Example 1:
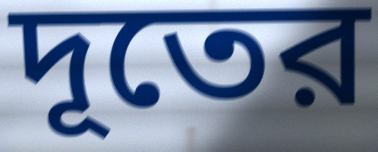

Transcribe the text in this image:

দূতের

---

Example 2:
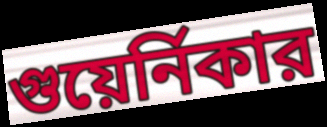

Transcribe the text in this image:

গুয়ের্নিকার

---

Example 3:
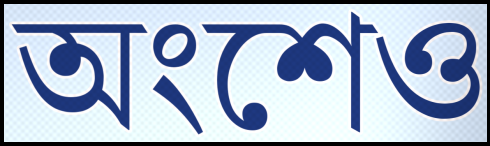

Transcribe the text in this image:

অংশেও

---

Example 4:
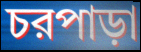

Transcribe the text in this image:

চরপাড়া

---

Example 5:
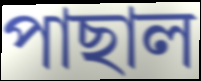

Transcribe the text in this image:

পাছাল